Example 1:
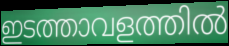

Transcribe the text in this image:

ഇടത്താവളത്തിൽ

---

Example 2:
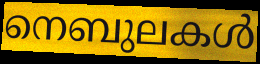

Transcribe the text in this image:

നെബുലകൾ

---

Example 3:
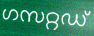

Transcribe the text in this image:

ഗസറ്റഡ്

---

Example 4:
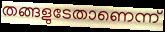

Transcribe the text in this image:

തങ്ങളുടേതാണെന്ന്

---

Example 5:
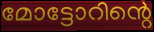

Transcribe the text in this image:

മോട്ടോറിന്റെ